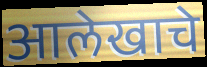
आलेखाचे